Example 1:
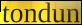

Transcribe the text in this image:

tondun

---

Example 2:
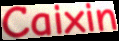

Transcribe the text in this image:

Caixin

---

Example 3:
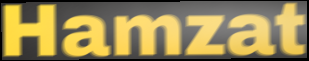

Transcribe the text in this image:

Hamzat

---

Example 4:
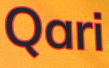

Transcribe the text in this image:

Qari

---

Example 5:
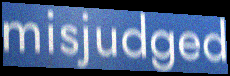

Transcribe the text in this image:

misjudged